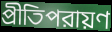
প্রীতিপরায়ণ